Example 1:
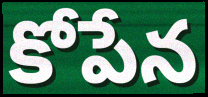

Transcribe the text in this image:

కోపేన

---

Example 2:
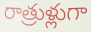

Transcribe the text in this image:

రాత్రుళ్లుగా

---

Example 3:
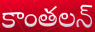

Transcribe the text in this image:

కాంతలన్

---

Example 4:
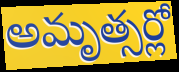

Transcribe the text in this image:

అమృత్సర్లో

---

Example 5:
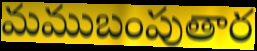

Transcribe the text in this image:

మముబంపుతార